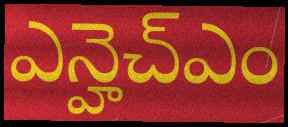
ఎన్హెచ్ఎం